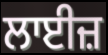
ਲਾਈਜ਼